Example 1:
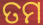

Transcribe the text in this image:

ତମ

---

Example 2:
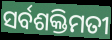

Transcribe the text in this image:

ସର୍ବଶକ୍ତିମତୀ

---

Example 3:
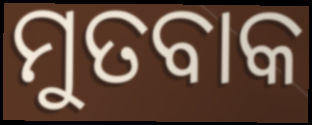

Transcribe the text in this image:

ମୁତବାକ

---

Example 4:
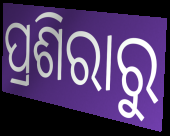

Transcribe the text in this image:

ପ୍ରଶିରାରୁ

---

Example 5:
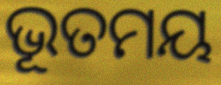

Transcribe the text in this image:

ଭୂତମୟ